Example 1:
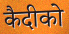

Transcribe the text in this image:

कैदीको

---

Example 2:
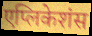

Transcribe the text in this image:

एप्लिकेशंस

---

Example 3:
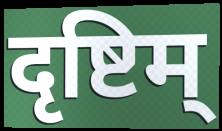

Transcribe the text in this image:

दृष्टिम्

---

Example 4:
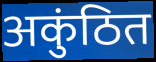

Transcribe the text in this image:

अकुंठित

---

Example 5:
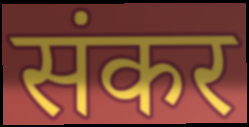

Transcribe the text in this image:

संकर